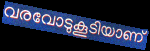
വരവോടുകൂടിയാണ്